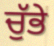
ਚੁੱਭੇ